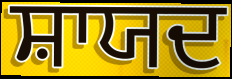
ਸ਼ਾਯਦ